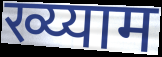
ख्य्याम